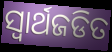
ସ୍ଵାର୍ଥଜଡିତ